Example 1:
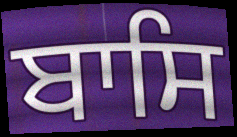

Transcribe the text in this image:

ਬਾਸਿ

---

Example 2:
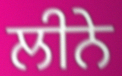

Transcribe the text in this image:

ਲੀਨੇ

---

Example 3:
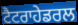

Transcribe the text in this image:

ਟੈਟਰਾਹੇਡਰਲ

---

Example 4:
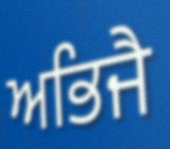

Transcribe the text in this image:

ਅਭਿਜੈ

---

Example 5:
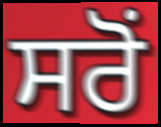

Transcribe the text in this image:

ਸਰੋਂ